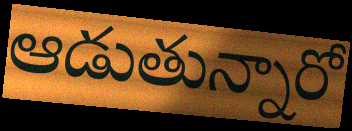
ఆడుతున్నారో